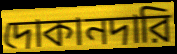
দোকানদারি